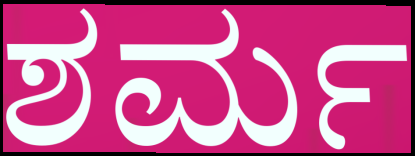
ಶರ್ಮ